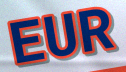
EUR